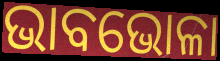
ଭାବଭୋଳା